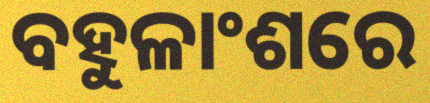
ବହୁଳାଂଶରେ